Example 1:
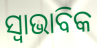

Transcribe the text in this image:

ସ୍ଵାଭାବିକ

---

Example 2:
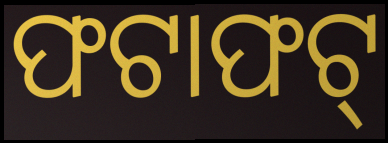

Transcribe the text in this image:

ଫଟାଫଟ୍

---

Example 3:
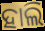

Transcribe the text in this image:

ହାଲି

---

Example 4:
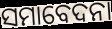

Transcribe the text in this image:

ସମାବେଦନା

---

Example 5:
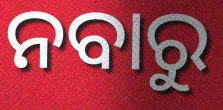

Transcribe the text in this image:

ନବାରୁ